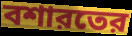
বশারতের